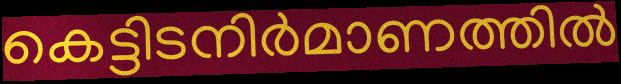
കെട്ടിടനിർമാണത്തിൽ